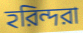
হরিন্দরা